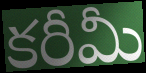
కరీమీ